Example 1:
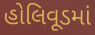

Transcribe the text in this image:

હોલિવૂડમાં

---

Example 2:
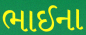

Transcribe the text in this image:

ભાઈના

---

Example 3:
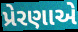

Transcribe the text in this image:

પ્રેરણાએ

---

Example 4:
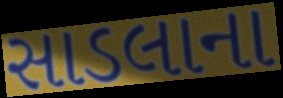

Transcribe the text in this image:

સાડલાના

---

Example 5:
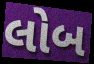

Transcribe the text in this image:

લોબ